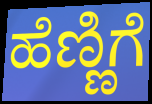
ಹೆಣ್ಣಿಗೆ